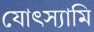
যোৎস্যামি